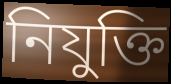
নিযুক্তি